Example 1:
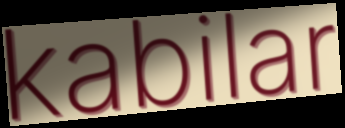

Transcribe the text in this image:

kabilar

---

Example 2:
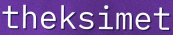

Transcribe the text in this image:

theksimet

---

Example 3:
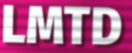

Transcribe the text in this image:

LMTD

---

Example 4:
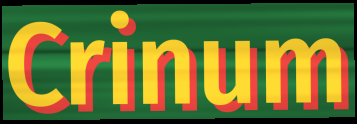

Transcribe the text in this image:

Crinum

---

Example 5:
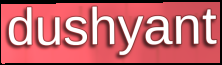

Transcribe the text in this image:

dushyant